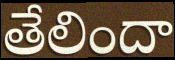
తేలిందా